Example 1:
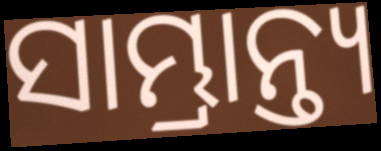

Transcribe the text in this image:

ସାମ୍ଭ୍ରାନ୍ତ୍ୟ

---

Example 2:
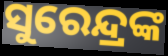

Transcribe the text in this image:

ସୁରେନ୍ଦ୍ରଙ୍କ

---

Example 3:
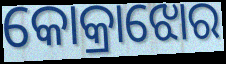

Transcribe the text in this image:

କୋକ୍ରାଝୋର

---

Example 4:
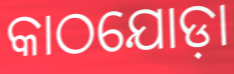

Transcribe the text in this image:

କାଠଯୋଡ଼ା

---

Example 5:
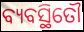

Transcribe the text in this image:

ବ୍ୟବସ୍ଥିତୌ